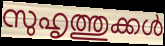
സുഹൃത്തുക്കൾ